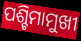
ପଶ୍ଚିମାମୁଖୀ